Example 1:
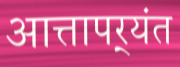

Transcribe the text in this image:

आत्तापर्यंत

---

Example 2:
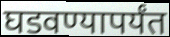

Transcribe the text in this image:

घडवण्यापर्यंत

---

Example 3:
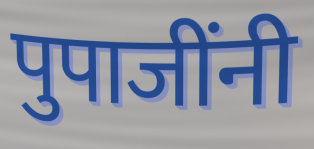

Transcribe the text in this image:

पुपाजींनी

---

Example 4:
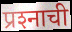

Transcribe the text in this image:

प्रश्‍नाची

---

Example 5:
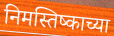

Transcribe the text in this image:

निमस्तिष्काच्या